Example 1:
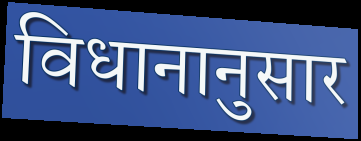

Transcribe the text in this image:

विधानानुसार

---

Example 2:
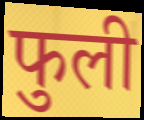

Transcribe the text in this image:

फुली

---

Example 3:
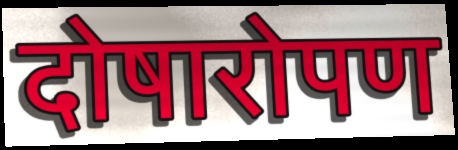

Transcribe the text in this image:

दोषारोपण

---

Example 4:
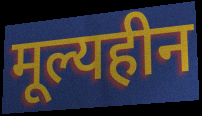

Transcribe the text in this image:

मूल्यहीन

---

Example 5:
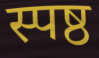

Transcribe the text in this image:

स्पष्ठ